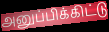
அனுப்பிக்கிட்டு